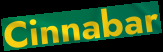
Cinnabar